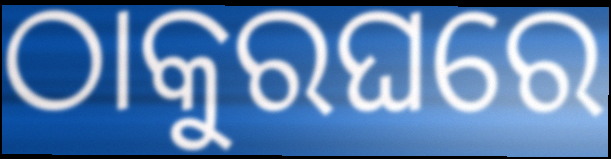
ଠାକୁରଘରେ